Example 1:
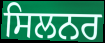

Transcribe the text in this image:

ਸਿਲਨਰ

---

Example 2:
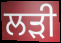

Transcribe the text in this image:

ਲਡ਼ੀ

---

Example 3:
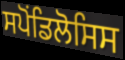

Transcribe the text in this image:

ਸਪੋਂਡਿਲੋਸਿਸ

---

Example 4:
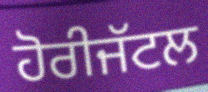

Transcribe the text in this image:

ਹੋਰੀਜੱਟਲ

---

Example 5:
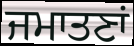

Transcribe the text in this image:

ਜਮਾਤਣਾਂ